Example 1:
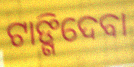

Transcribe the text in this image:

ଟାଙ୍ଗିଦେବା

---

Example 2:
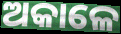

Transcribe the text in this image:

ଅକାଳେ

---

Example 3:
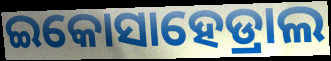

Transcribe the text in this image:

ଇକୋସାହେଡ୍ରାଲ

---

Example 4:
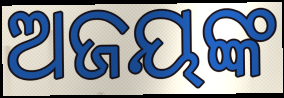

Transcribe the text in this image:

ଅଜୟଙ୍କ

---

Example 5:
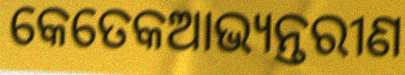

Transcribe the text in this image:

କେତେକଆଭ୍ୟନ୍ତରୀଣ